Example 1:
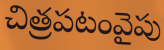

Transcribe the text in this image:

చిత్రపటంవైపు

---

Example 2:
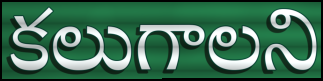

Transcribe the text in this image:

కలుగాలని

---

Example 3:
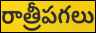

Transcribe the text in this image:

రాత్రీపగలు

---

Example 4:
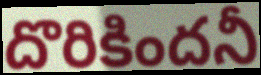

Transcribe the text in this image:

దొరికిందనీ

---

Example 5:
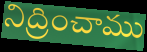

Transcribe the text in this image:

నిద్రించాము